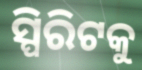
ସ୍ପିରିଟକୁ